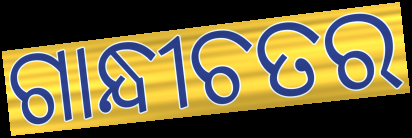
ଗାନ୍ଧୀଚତର